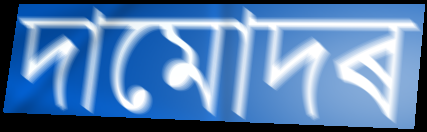
দামোদৰ